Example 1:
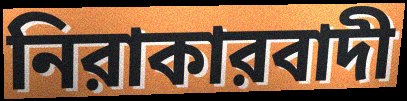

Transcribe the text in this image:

নিরাকারবাদী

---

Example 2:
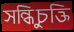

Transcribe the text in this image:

সন্ধিচুক্তি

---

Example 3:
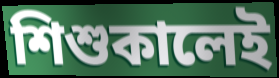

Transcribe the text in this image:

শিশুকালেই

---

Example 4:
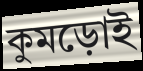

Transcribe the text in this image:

কুমড়োই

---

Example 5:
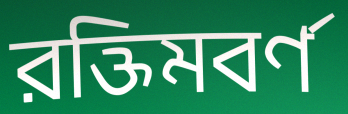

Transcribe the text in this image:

রক্তিমবর্ণ